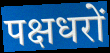
पक्षधरों